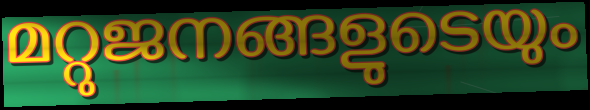
മറ്റുജനങ്ങളുടെയും